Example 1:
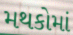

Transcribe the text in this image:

મથકોમાં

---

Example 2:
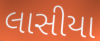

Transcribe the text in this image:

લાસીયા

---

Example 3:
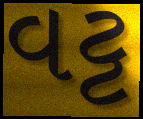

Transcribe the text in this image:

વટ્ટ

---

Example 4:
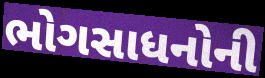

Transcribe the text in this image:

ભોગસાધનોની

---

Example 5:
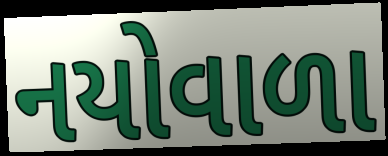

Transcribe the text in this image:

નયોવાળા